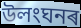
উলংঘনৰ